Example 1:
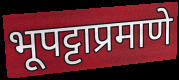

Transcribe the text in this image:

भूपट्टाप्रमाणे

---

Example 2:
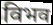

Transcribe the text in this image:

विभव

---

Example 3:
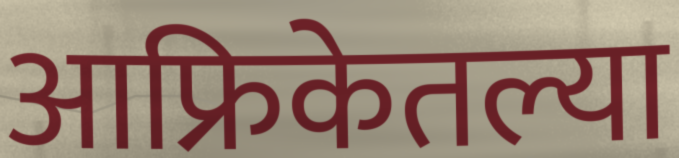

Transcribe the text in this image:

आफ्रिकेतल्या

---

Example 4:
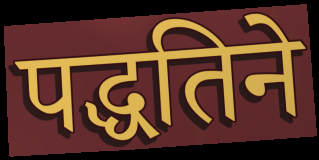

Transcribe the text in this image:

पद्धतिने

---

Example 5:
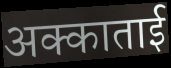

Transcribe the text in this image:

अक्काताई